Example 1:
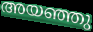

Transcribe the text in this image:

അയഞ്ഞു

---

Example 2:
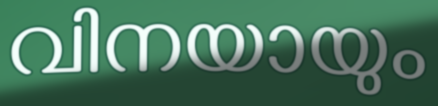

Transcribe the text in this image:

വിനയായും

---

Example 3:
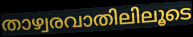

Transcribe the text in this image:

താഴ്വരവാതിലിലൂടെ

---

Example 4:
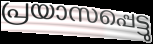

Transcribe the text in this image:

പ്രയാസപ്പെട്ടു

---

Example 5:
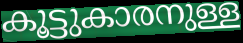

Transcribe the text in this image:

കൂട്ടുകാരനുള്ള